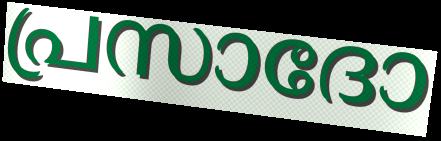
പ്രസാദോ